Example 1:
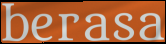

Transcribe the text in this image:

berasa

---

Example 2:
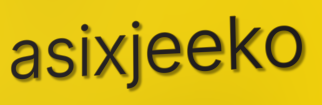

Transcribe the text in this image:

asixjeeko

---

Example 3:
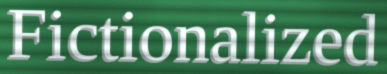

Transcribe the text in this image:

Fictionalized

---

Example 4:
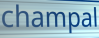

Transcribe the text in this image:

champal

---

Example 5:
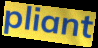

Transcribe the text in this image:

pliant